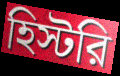
হিস্টরি